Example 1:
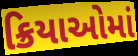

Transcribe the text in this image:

ક્રિયાઓમાં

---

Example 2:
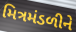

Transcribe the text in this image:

મિત્રમંડળીને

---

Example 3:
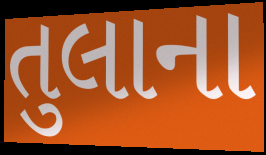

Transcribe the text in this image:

તુલાના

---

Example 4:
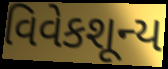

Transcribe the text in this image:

વિવેકશૂન્ય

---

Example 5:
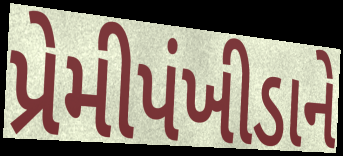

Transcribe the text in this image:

પ્રેમીપંખીડાને